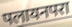
पलायनपरा